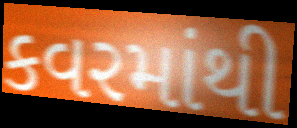
કવરમાંથી